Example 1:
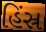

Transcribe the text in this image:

હિંસ્ર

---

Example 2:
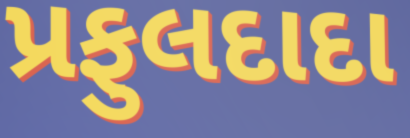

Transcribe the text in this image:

પ્રફુલદાદા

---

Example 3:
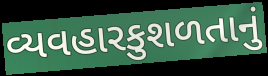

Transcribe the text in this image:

વ્યવહારકુશળતાનું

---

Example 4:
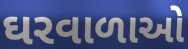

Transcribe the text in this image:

ઘરવાળાઓ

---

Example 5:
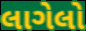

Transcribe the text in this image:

લાગેલો